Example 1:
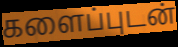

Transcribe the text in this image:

களைப்புடன்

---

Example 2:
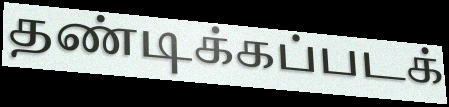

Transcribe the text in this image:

தண்டிக்கப்படக்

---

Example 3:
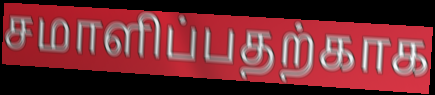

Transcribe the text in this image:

சமாளிப்பதற்காக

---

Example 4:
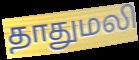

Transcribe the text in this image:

தாதுமலி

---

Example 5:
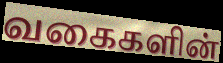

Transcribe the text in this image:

வகைகளின்